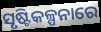
ସୃଷ୍ଟିକଳ୍ପନାରେ